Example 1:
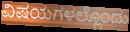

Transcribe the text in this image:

ವಿಷಯಗಳಲ್ಲೊಂದು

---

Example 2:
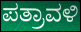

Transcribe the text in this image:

ಪತ್ರಾವಳಿ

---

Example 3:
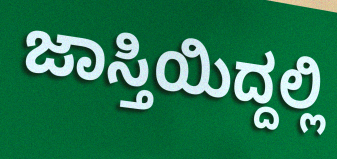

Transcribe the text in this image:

ಜಾಸ್ತಿಯಿದ್ದಲ್ಲಿ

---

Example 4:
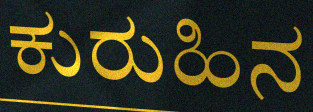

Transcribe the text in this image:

ಕುರುಹಿನ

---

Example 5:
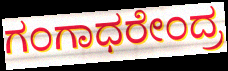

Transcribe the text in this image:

ಗಂಗಾಧರೇಂದ್ರ